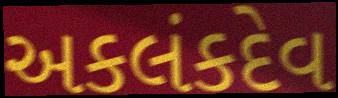
અકલંકદેવ